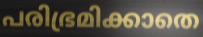
പരിഭ്രമിക്കാതെ